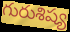
గురుశిష్య